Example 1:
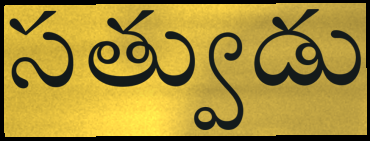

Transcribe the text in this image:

సత్వుడు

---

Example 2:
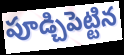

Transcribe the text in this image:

పూడ్చిపెట్టిన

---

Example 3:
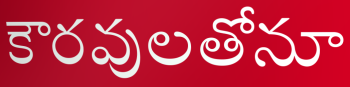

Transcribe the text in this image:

కౌరవులతోనూ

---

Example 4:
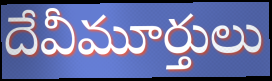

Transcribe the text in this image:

దేవీమూర్తులు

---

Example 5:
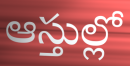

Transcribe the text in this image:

ఆస్తుల్లో